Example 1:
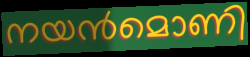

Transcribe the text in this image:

നയൻമൊണി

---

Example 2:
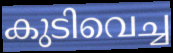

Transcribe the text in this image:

കുടിവെച്ച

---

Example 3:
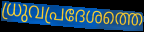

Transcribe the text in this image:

ധ്രുവപ്രദേശത്തെ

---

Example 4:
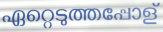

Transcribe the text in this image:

ഏറ്റെടുത്തപ്പോള്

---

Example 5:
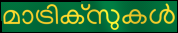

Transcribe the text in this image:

മാട്രിക്സുകൾ